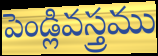
పెండ్లివస్త్రము